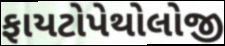
ફાયટોપેથોલોજી